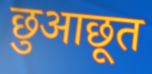
छुआछूत